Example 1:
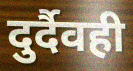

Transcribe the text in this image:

दुर्दैवही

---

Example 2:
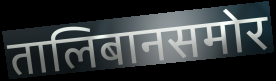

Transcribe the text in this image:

तालिबानसमोर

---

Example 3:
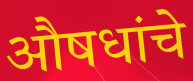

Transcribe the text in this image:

औषधांचे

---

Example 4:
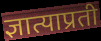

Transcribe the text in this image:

ज्ञात्याप्रती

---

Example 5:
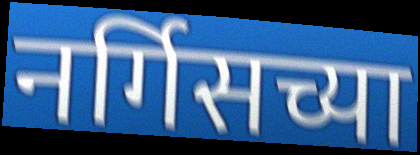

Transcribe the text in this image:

नर्गिसच्या